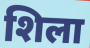
शिला